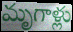
మృగాళ్లు